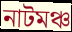
নাটমঞ্চ